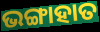
ଭଙ୍ଗାହାତ